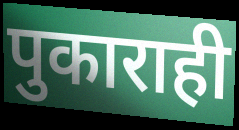
पुकाराही